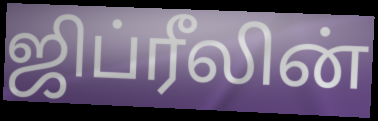
ஜிப்ரீலின்